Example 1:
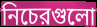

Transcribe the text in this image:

নিচেরগুলো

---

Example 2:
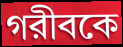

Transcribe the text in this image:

গরীবকে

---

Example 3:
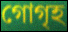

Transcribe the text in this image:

গোগৃহ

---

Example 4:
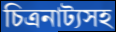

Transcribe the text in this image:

চিত্রনাট্যসহ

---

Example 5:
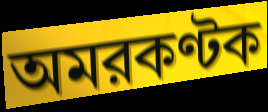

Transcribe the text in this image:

অমরকণ্টক